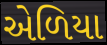
એળિયા